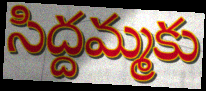
సిద్దమ్మకు